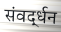
संवर्द्धन